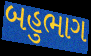
બહુભાગ